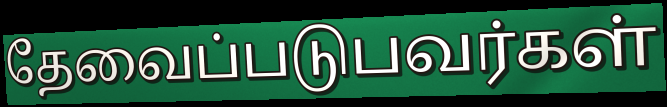
தேவைப்படுபவர்கள்